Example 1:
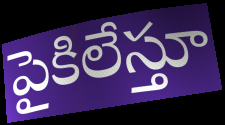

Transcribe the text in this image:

పైకిలేస్తూ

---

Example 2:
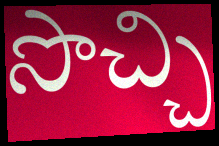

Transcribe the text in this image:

సొచ్చి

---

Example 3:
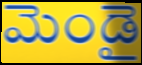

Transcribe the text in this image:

మెండై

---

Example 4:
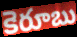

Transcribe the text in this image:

కెరూబు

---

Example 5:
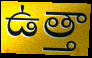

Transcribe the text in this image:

ఉత్తా